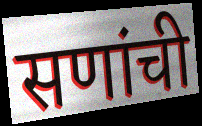
सणांची